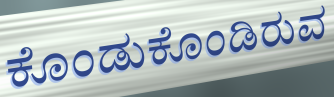
ಕೊಂಡುಕೊಂಡಿರುವ